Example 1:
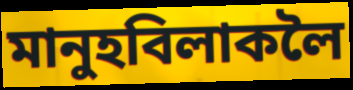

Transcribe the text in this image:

মানুহবিলাকলৈ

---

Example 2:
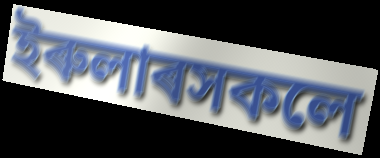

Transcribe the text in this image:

ইৰুলাৰসকলে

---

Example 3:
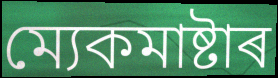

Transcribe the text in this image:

ম্যেকমাষ্টাৰ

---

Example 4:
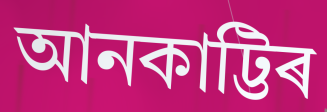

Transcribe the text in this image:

আনকাট্টিৰ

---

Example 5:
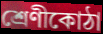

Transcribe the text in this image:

শ্ৰেণীকোঠা